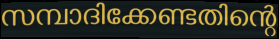
സമ്പാദിക്കേണ്ടതിന്റെ